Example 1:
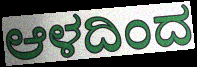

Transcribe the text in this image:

ಆಳದಿಂದ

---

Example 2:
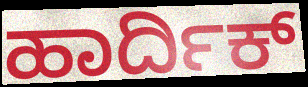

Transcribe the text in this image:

ಹಾರ್ದಿಕ್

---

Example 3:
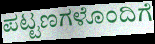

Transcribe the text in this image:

ಪಟ್ಟಣಗಳೊಂದಿಗೆ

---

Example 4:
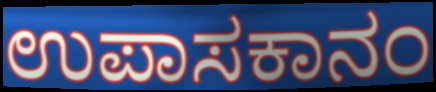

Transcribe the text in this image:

ಉಪಾಸಕಾನಂ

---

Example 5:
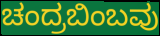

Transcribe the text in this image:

ಚಂದ್ರಬಿಂಬವು